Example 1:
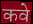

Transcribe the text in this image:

कवे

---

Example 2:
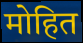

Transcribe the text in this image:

मोहित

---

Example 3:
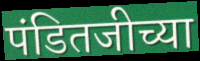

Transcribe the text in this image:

पंडितजीच्या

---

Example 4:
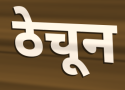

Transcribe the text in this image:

ठेचून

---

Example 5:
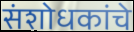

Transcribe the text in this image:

संशोधकांचे